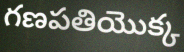
గణపతియొక్క